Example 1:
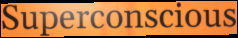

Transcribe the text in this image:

Superconscious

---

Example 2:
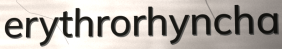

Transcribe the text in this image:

erythrorhyncha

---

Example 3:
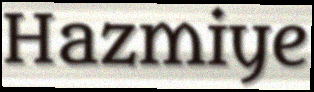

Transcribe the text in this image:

Hazmiye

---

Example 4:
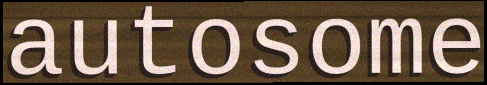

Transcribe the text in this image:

autosome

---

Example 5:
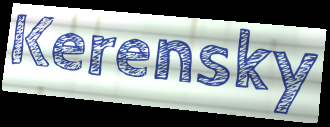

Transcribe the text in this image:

Kerensky